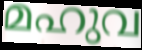
മഹുവ